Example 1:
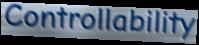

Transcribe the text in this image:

Controllability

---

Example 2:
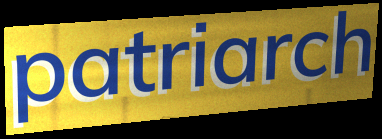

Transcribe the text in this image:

patriarch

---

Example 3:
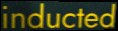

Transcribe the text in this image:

inducted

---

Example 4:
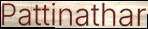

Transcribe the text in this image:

Pattinathar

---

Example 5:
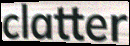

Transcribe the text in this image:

clatter